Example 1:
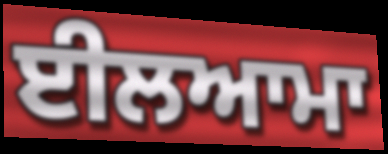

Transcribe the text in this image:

ਈਲਆਮਾ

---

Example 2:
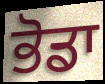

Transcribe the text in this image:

ਭੋਡਾ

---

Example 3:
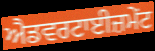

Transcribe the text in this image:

ਐਡਵਰਟਾਈਜ਼ਮੇਂਟ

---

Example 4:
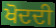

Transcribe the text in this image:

ਖੋਦਦੀ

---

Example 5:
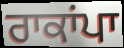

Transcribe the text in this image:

ਰਾਕਾਂਪਾ